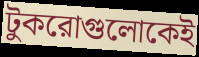
টুকরোগুলোকেই